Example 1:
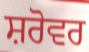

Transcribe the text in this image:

ਸ਼ਰੋਵਰ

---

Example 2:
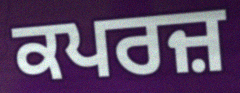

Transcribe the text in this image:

ਕਪਰਜ਼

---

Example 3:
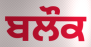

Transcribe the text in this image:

ਬਲੌਕ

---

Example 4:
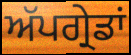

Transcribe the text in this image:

ਅੱਪਗ੍ਰੇਡਾਂ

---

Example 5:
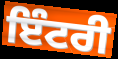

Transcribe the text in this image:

ਇੰਟਰੀ